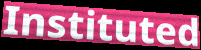
Instituted